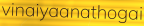
vinaiyaanathogai